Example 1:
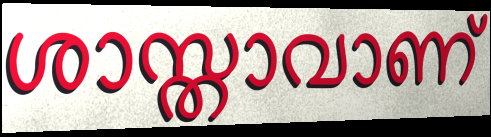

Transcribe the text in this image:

ശാസ്താവാണ്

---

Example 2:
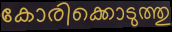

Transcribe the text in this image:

കോരിക്കൊടുത്തു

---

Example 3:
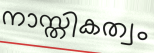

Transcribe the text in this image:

നാസ്തികത്വം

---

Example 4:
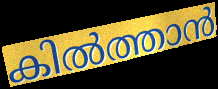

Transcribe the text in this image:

കിൽത്താൻ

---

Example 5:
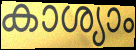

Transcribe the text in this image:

കാശ്യാം